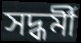
সদ্ধর্মী